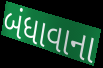
બંધાવાના